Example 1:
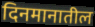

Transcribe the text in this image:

दिनमानातील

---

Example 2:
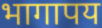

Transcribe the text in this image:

भागापय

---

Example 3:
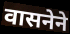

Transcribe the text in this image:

वासनेने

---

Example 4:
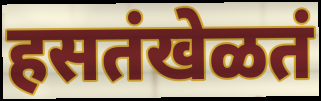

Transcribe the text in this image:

हसतंखेळतं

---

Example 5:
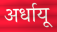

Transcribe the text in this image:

अर्धायू